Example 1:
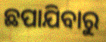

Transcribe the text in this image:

ଛପାଯିବାରୁ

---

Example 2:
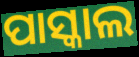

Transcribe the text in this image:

ପାସ୍କାଲ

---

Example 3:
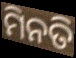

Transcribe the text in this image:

ମିନତି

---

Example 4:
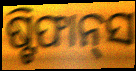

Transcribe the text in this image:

ଷ୍ଟିଫାନ୍‍ସ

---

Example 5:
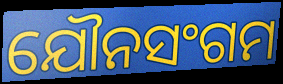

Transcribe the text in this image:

ଯୌନସଂଗମ